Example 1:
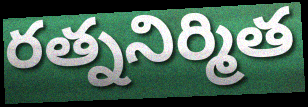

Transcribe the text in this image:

రత్ననిర్మిత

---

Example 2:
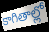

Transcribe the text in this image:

కాగితాల్లో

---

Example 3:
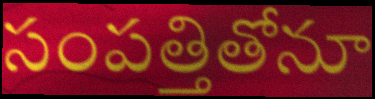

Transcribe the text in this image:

సంపత్తితోనూ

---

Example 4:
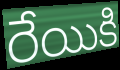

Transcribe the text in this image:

రేయికి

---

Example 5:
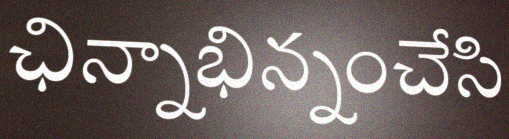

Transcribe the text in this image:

ఛిన్నాభిన్నంచేసి